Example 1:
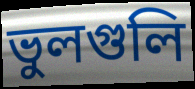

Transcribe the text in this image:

ভুলগুলি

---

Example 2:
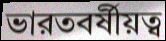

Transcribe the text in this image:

ভারতবর্ষীয়ত্ব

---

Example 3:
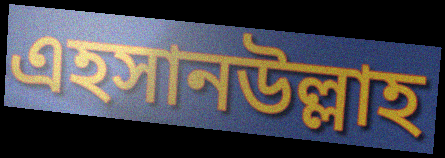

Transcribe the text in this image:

এহসানউল্লাহ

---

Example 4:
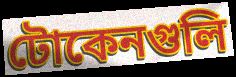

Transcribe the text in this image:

টোকেনগুলি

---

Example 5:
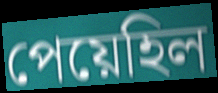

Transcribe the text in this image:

পেয়েহিল